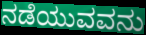
ನಡೆಯುವವನು